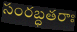
సంరబ్ధతరాః